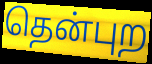
தென்புற